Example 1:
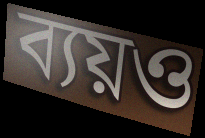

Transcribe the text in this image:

ব্যয়ও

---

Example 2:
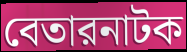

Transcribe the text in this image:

বেতারনাটক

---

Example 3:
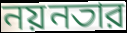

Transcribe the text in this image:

নয়নতার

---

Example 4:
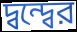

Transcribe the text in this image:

দ্বন্দ্বের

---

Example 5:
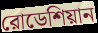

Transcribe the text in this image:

রোডেশিয়ান